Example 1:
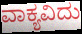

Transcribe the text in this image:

ವಾಕ್ಯವಿದು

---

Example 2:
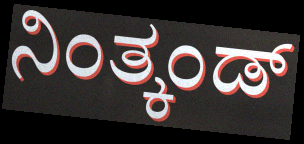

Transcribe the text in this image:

ನಿಂತ್ಕಂಡ್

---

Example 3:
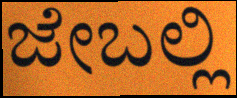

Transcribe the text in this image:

ಜೇಬಲ್ಲಿ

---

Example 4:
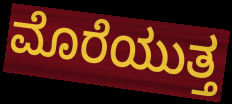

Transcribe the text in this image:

ಮೊರೆಯುತ್ತ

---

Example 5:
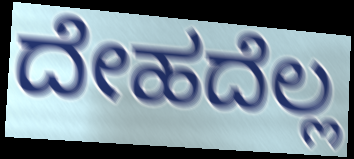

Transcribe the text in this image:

ದೇಹದೆಲ್ಲ